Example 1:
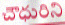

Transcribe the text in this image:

చౌధురిని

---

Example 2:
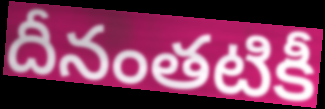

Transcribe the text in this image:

దీనంతటికీ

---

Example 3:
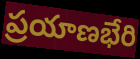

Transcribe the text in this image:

ప్రయాణభేరి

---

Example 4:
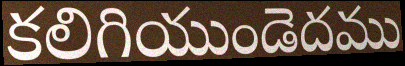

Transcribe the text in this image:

కలిగియుండెదము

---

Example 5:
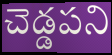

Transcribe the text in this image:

చెడ్డపని